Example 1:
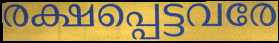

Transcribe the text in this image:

രക്ഷപ്പെട്ടവരേ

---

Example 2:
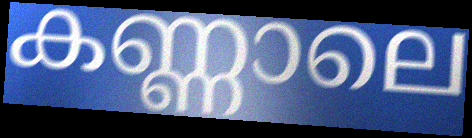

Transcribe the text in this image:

കണ്ണാലെ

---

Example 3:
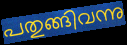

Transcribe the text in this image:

പതുങ്ങിവന്നു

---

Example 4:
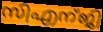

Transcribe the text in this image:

സിഎന്ജി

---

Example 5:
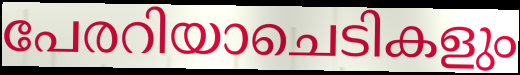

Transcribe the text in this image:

പേരറിയാചെടികളും